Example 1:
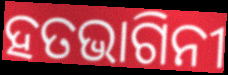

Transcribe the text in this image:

ହତଭାଗିନୀ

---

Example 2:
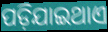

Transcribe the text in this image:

ପଡ଼ିଯାଇଥାଏ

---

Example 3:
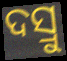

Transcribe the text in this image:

ଦସ୍ରୁ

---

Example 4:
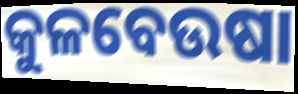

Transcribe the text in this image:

କୁଳବେଉଷା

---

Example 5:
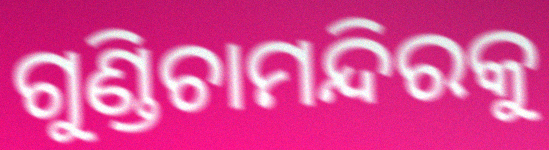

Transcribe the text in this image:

ଗୁଣ୍ଡିଚାମନ୍ଦିରକୁ